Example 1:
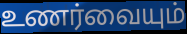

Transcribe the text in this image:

உணர்வையும்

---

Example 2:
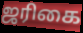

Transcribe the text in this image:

ஜரிகை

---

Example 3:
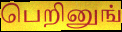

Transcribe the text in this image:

பெறினுங்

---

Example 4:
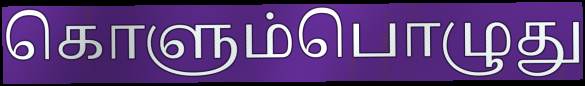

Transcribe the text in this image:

கொளும்பொழுது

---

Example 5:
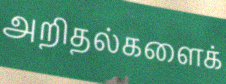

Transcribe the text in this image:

அறிதல்களைக்